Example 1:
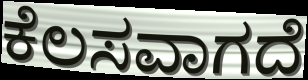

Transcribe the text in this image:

ಕೆಲಸವಾಗದೆ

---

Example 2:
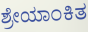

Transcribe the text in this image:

ಶ್ರೇಯಾಂಕಿತ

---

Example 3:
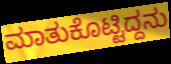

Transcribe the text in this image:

ಮಾತುಕೊಟ್ಟಿದ್ದನು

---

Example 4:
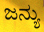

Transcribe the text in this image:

ಜನ್ಯು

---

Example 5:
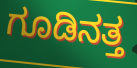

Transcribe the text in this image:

ಗೂಡಿನತ್ತ